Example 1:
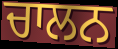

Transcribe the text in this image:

ਚਾਲਨ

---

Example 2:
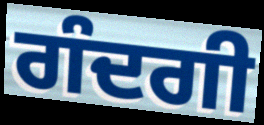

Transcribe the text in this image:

ਗੰਦਗੀ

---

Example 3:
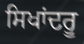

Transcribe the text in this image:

ਸਿਖਾਂਦਰੂ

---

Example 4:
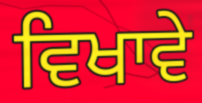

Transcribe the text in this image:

ਵਿਖਾਵੇ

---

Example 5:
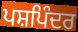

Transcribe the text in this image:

ਪਸ਼ਪਿੰਦਰ